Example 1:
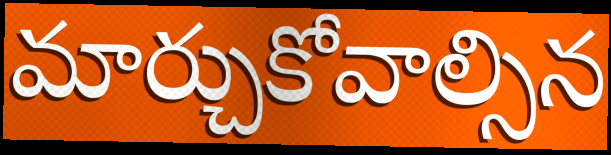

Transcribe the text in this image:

మార్చుకోవాల్సిన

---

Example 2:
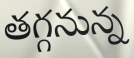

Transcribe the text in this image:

తగ్గనున్న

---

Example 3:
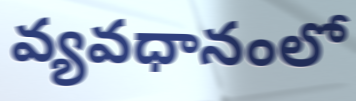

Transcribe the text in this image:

వ్యవధానంలో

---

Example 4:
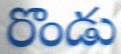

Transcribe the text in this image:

రొండు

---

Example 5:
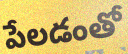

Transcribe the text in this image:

పేలడంతో